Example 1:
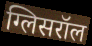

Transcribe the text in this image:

ग्लिसरॉल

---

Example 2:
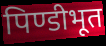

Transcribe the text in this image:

पिण्डीभूत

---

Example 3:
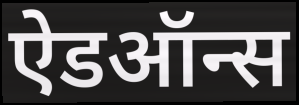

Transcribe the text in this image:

ऐडऑन्स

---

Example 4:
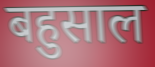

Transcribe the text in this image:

बहुसाल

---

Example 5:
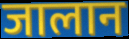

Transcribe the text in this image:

जालान